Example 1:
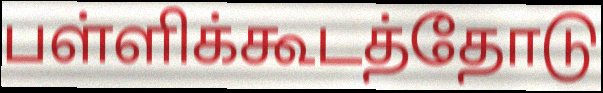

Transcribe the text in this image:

பள்ளிக்கூடத்தோடு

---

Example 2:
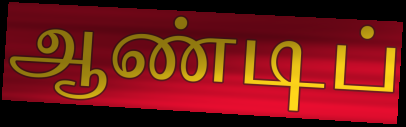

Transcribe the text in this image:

ஆண்டிப்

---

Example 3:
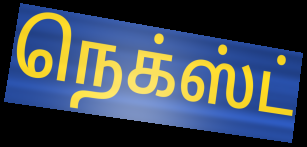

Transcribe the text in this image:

நெக்ஸ்ட்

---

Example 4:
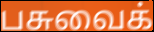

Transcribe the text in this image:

பசுவைக்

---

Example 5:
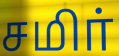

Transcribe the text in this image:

சமிர்